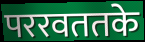
पररवततके